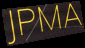
JPMA